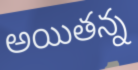
అయితన్న